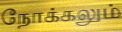
நோக்கலும்